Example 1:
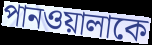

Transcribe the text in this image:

পানওয়ালাকে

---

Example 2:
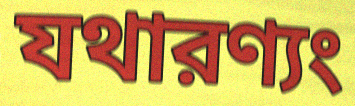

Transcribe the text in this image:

যথারণ্যং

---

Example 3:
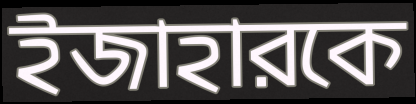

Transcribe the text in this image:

ইজাহারকে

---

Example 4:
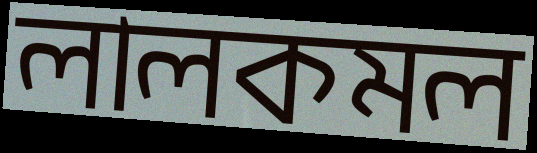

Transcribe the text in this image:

লালকমল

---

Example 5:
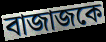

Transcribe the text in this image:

বাজাজকে